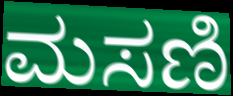
ಮಸಣಿ